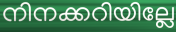
നിനക്കറിയില്ലേ